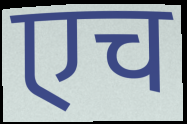
एच